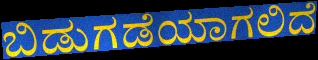
ಬಿಡುಗಡೆಯಾಗಲಿದೆ